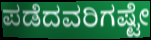
ಪಡೆದವರಿಗಷ್ಟೇ